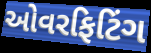
ઓવરફિટિંગ